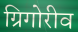
ग्रिगोरीव